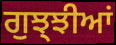
ਗੁਝ੍ਝੀਆਂ